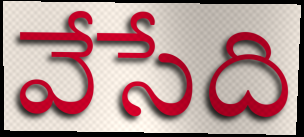
వేసేది